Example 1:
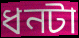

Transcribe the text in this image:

ধনটা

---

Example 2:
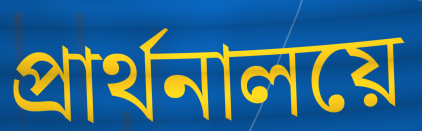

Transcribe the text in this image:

প্রার্থনালয়ে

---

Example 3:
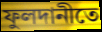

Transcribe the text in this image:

ফুলদানীতে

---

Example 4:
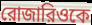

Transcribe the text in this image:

রোজারিওকে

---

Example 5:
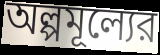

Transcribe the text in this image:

অল্পমূল্যের